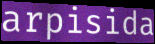
arpisida